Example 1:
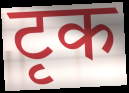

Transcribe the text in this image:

टृक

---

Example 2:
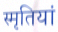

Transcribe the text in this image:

स्मृतियां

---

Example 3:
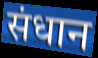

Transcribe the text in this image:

संधान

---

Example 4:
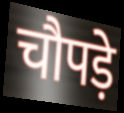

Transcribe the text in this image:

चौपड़े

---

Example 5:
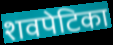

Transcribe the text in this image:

शवपेटिका